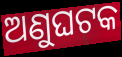
ଅଣୁଘଟକ